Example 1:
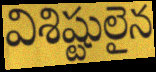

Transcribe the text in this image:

విశిష్టులైన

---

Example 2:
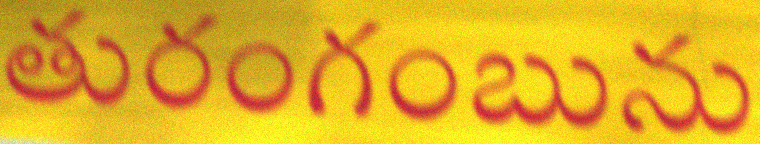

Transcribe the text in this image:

తురంగంబును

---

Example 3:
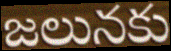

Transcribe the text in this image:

జలునకు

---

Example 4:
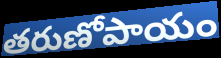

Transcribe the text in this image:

తరుణోపాయం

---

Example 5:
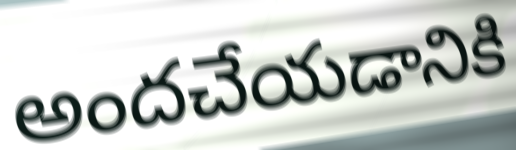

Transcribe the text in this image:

అందచేయడానికి